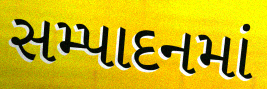
સમ્પાદનમાં